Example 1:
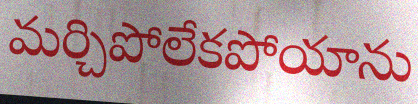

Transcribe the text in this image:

మర్చిపోలేకపోయాను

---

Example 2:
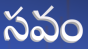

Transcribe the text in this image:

సవం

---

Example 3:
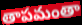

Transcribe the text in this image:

తాపమంతా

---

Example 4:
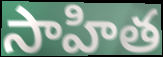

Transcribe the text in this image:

సాహిత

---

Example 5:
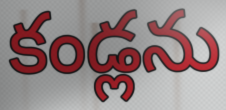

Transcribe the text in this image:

కండ్లను